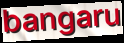
bangaru